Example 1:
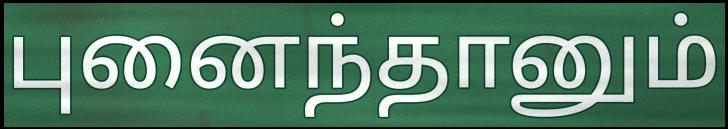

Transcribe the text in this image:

புனைந்தானும்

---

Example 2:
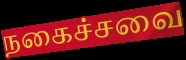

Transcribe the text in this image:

நகைச்சவை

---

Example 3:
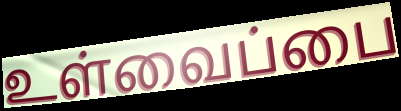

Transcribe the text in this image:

உள்வைப்பை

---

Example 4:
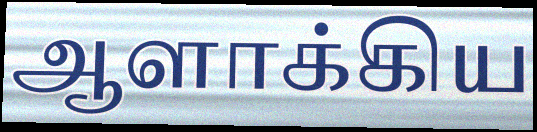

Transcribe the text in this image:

ஆளாக்கிய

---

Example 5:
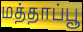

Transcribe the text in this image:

மத்தாப்பூ